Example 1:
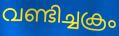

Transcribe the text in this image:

വണ്ടിച്ചക്രം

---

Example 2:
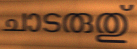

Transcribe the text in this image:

ചാടരുതു്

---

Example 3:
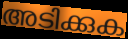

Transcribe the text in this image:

അടിക്കുക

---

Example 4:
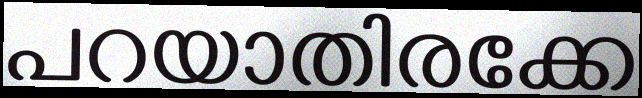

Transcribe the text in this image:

പറയാതിരക്കേ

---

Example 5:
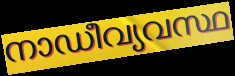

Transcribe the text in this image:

നാഡീവ്യവസ്ഥ